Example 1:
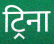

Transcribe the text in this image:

ट्रिना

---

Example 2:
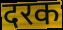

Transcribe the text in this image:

दरक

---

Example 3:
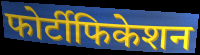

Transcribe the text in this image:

फोर्टीफिकेशन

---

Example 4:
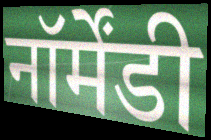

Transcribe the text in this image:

नॉर्मेंडी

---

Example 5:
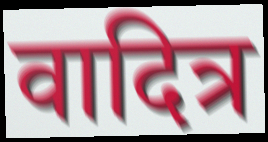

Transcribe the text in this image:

वादित्र